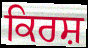
ਕਿਰਸ਼